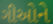
ગીઓને